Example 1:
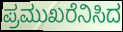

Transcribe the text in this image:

ಪ್ರಮುಖರೆನಿಸಿದ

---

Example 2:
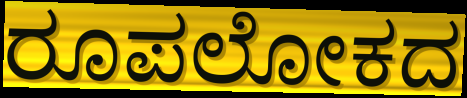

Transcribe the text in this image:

ರೂಪಲೋಕದ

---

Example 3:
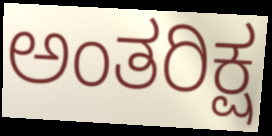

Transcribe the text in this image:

ಅಂತರಿಕ್ಷ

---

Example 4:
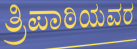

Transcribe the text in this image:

ತ್ರಿಪಾಠಿಯವರ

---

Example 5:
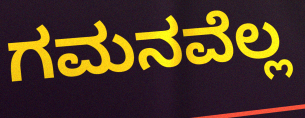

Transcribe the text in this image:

ಗಮನವೆಲ್ಲ